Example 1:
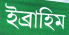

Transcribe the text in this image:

ইব্রাহিম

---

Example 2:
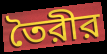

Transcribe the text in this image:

তৈরীর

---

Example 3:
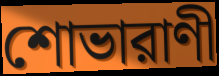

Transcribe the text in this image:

শোভারাণী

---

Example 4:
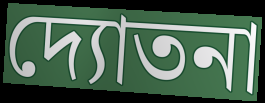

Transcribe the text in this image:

দ্যোতনা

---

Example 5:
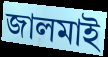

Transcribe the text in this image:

জালমাই